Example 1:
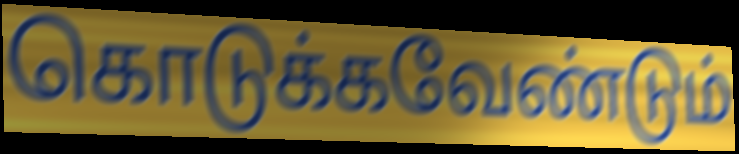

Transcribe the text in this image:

கொடுக்கவேண்டும்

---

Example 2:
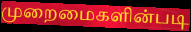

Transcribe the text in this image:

முறைமைகளின்படி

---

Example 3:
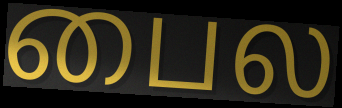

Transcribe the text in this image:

பைல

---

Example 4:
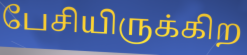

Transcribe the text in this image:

பேசியிருக்கிற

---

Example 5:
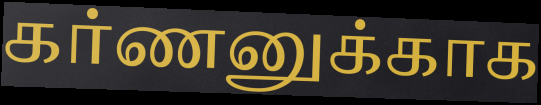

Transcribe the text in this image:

கர்ணனுக்காக